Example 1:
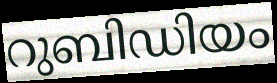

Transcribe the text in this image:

റുബിഡിയം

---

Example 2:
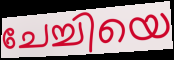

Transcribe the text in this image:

ചേച്ചിയെ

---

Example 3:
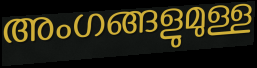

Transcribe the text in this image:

അംഗങ്ങളുമുള്ള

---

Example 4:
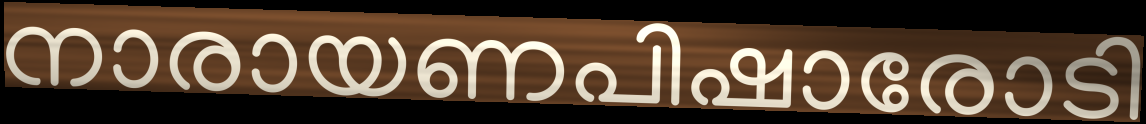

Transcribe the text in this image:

നാരായണപിഷാരോടി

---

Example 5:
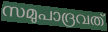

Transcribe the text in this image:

സമുപാദ്രവത്